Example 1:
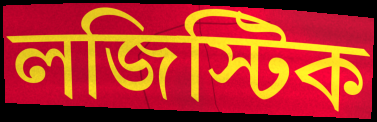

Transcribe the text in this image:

লজিস্টিক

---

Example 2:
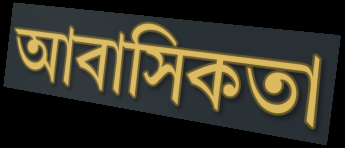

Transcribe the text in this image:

আবাসিকতা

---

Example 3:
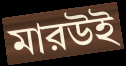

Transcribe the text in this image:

মারউই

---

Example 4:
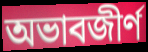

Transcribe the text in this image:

অভাবজীর্ণ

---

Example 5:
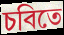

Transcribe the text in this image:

চবিতে